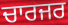
ਚਾਰਜਰ